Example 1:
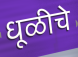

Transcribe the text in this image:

धूळीचे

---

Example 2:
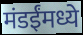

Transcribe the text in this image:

मंडईंमध्ये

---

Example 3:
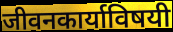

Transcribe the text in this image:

जीवनकार्याविषयी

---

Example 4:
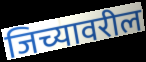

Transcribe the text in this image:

जिच्यावरील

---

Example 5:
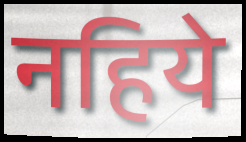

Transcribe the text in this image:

नहिये